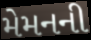
મેમનની